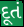
દૂતં